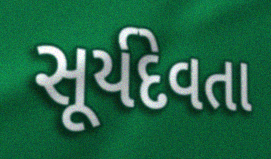
સૂર્યદેવતા